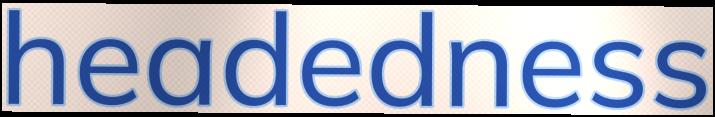
headedness